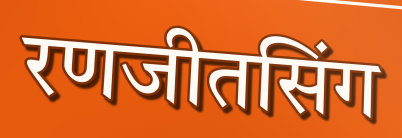
रणजीतसिंग